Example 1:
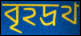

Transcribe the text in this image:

বৃহদ্রথ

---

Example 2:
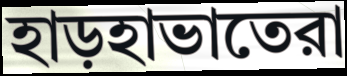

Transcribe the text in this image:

হাড়হাভাতেরা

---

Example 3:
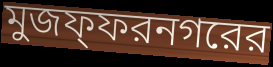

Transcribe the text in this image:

মুজফ্ফরনগরের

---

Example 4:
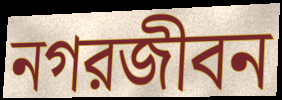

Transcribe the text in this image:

নগরজীবন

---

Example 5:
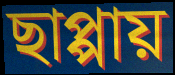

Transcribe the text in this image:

ছাপ্পায়